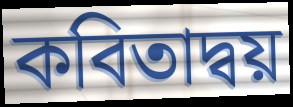
কবিতাদ্বয়